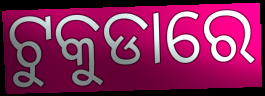
ଟୁକୁଡାରେ